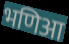
भणिआ